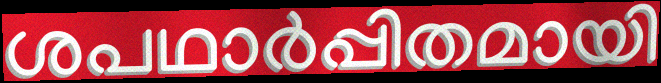
ശപഥാർപ്പിതമായി